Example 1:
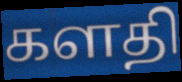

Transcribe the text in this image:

களதி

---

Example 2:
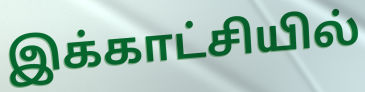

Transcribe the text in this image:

இக்காட்சியில்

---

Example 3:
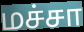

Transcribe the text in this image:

மச்சா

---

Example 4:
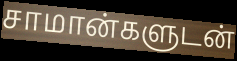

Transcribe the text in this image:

சாமான்களுடன்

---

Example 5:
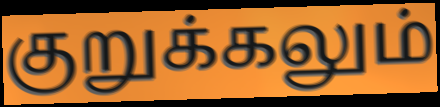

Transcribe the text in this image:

குறுக்கலும்